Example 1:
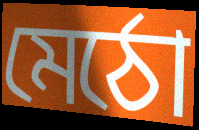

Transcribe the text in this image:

মেঠো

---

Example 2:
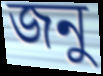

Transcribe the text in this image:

জনু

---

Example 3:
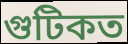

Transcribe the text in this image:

গুটিকত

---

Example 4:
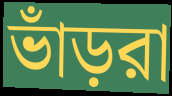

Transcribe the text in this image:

ভাঁড়রা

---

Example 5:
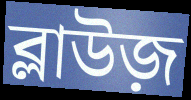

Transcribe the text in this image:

ব্লাউজ়